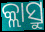
କ୍ଲାସ୍ରୁ